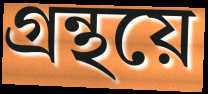
গ্ৰন্থয়ে